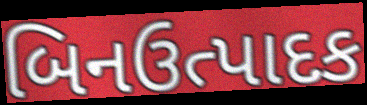
બિનઉત્પાદક